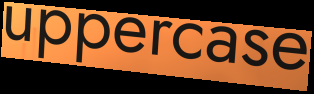
uppercase